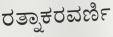
ರತ್ನಾಕರವರ್ಣಿ